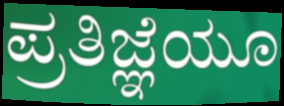
ಪ್ರತಿಜ್ಞೆಯೂ